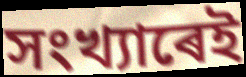
সংখ্যাৰেই